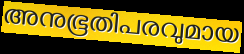
അനുഭൂതിപരവുമായ